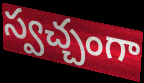
స్వచ్చంగా